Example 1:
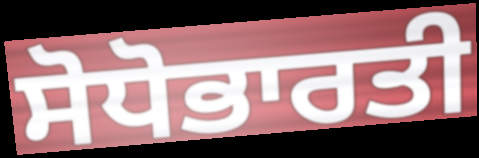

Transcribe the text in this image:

ਸੋਧੋਭਾਰਤੀ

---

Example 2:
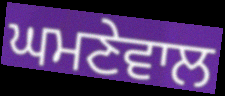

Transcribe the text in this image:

ਘਮਣੇਵਾਲ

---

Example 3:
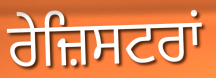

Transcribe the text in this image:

ਰੇਜ਼ਿਸਟਰਾਂ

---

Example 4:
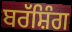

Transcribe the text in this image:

ਬਰੱਸ਼ਿੰਗ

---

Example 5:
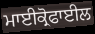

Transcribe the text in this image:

ਮਾਈਕ੍ਰੋਫਾਈਲ